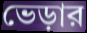
ভেড়ার